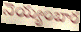
నెయ్యంబార